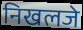
निखलजे